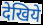
देखिये